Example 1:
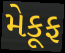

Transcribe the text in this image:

મેકૂફ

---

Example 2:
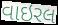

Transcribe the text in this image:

વાઇરલ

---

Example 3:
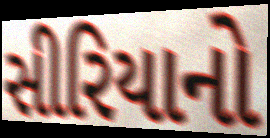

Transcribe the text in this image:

સીરિયાનો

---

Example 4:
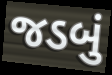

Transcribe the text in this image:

જડબું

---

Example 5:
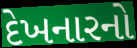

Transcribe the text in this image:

દેખનારનો